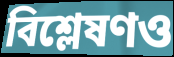
বিশ্লেষণও